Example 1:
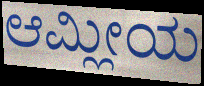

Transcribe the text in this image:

ಆಮ್ಲೀಯ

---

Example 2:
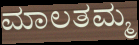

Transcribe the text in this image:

ಮಾಲತಮ್ಮ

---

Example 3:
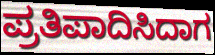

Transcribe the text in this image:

ಪ್ರತಿಪಾದಿಸಿದಾಗ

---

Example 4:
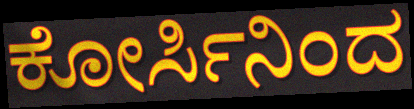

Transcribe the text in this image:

ಕೋರ್ಸಿನಿಂದ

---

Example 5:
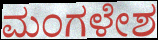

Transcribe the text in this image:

ಮಂಗಳೇಶ